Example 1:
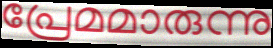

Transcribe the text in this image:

പ്രേമമാരുന്നു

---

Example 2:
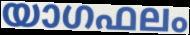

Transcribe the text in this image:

യാഗഫലം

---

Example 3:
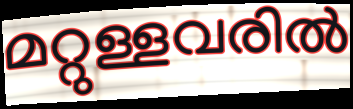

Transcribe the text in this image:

മറ്റുള്ളവരിൽ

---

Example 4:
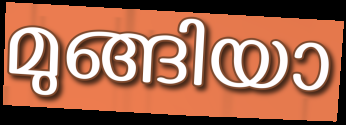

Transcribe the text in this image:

മുങ്ങിയാ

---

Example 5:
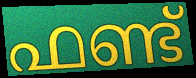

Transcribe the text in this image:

ഫണ്ട്